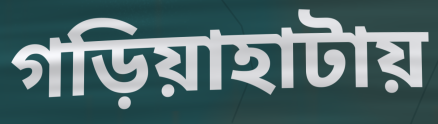
গড়িয়াহাটায়